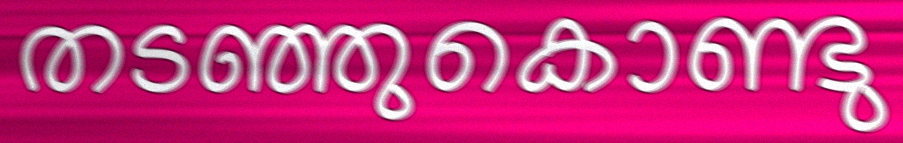
തടഞ്ഞുകൊണ്ടു